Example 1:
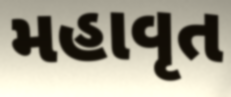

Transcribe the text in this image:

મહાવૃત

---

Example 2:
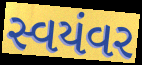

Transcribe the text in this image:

સ્વયંવર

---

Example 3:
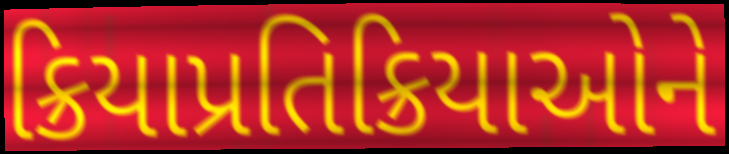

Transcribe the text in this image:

ક્રિયાપ્રતિક્રિયાઓને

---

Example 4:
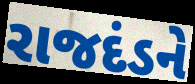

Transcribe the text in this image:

રાજદંડને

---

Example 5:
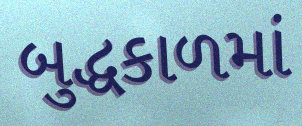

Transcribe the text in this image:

બુદ્ધકાળમાં